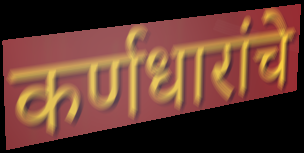
कर्णधारांचे